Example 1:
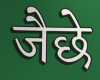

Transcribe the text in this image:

जैछे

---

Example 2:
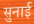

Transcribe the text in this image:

सुनाई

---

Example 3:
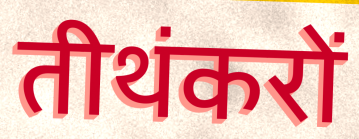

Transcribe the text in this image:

तीथंकरों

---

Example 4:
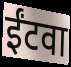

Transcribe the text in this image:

ईंटवा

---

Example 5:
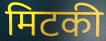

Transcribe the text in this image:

मिटकी